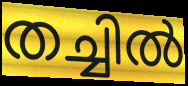
തച്ചിൽ